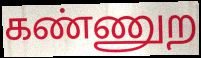
கண்ணுற